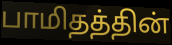
பாமிதத்தின்